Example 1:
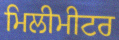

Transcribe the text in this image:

ਮਿਲੀਮੀਟਰ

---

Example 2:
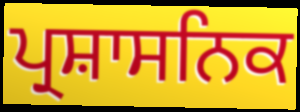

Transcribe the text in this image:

ਪ੍ਰਸ਼ਾਸਨਿਕ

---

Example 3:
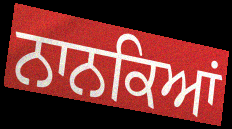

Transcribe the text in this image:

ਨਾਨਕਿਆਂ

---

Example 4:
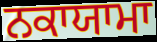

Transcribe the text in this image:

ਨਕਾਯਾਮਾ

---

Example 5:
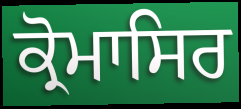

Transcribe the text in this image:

ਕ੍ਰੋਮਾਸਿਰ